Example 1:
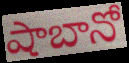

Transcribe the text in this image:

షాబానో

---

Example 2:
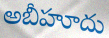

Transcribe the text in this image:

అబీహూదు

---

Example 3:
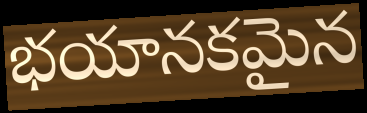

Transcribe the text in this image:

భయానకమైన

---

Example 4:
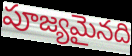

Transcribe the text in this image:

పూజ్యమైనది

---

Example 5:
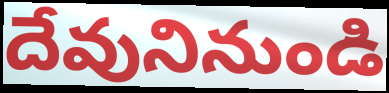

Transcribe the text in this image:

దేవునినుండి